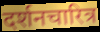
दर्शनचारित्र